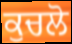
ਕੁਚਲੋ